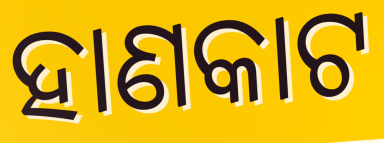
ହାଣକାଟ